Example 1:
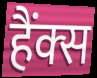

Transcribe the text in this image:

हैंक्‍स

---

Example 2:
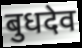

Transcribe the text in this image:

बुधदेव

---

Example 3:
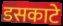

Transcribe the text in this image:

डसकाटे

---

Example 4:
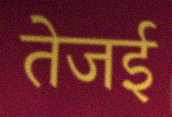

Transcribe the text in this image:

तेजई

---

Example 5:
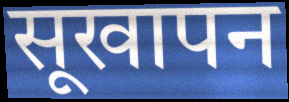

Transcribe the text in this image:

सूखापन